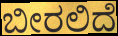
ಬೀರಲಿದೆ